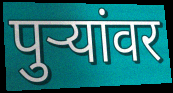
पुऱ्यांवर